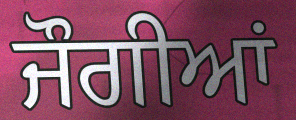
ਜੌਗੀਆਂ